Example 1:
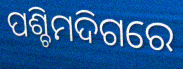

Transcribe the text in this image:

ପଶ୍ଚିମଦିଗରେ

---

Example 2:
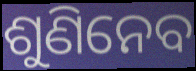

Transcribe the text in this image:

ଶୁଣିନେବ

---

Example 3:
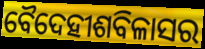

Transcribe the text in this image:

ବୈଦେହୀଶବିଳାସର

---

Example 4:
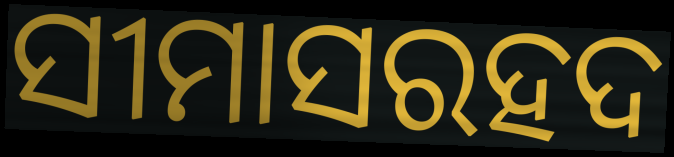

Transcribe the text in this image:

ସୀମାସରହଦ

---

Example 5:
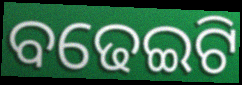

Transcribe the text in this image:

ବଢେଇଟି